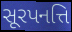
સૂરપનત્તિ